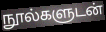
நூல்களுடன்